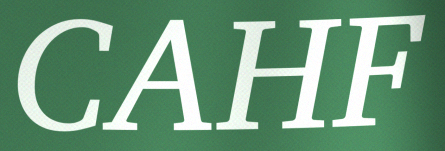
CAHF